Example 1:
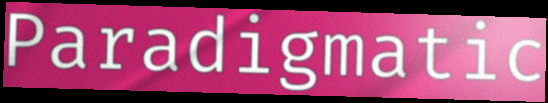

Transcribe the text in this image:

Paradigmatic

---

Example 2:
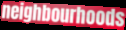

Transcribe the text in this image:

neighbourhoods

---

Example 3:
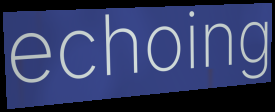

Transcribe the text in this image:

echoing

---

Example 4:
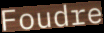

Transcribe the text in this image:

Foudre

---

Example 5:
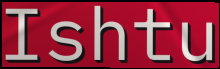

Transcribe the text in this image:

Ishtu